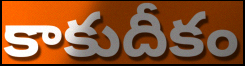
కాకుదీకం